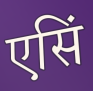
एसिं